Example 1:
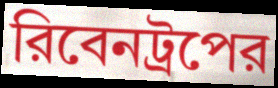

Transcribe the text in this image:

রিবেনট্রপের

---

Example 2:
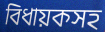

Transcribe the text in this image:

বিধায়কসহ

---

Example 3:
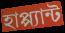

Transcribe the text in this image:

হাপ্প্যান্ট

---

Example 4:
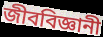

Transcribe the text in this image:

জীববিজ্ঞানী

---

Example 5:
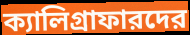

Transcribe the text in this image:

ক্যালিগ্রাফারদের